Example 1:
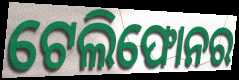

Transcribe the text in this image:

ଟେଲିଫୋନର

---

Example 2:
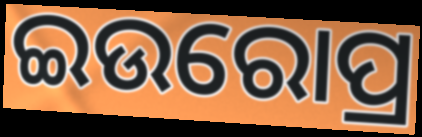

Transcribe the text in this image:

ଇଉରୋପ୍ର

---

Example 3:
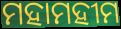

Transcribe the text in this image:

ମହାମହୀମ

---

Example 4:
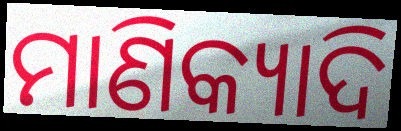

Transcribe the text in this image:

ମାଣିକ୍ୟାଦି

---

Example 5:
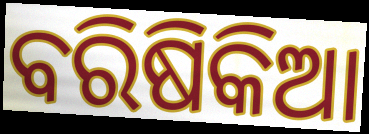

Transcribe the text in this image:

ବରିଷିକିଆ